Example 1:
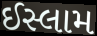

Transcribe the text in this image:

ઈસ્લામ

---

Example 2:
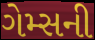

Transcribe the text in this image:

ગેમ્સની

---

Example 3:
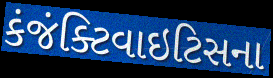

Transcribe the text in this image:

કંજંક્ટિવાઇટિસના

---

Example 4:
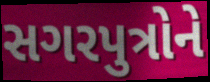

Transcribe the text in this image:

સગરપુત્રોને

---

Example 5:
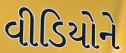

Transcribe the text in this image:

વીડિયોને